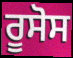
ਰੂਸੋਸ